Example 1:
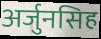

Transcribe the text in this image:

अर्जुनसिह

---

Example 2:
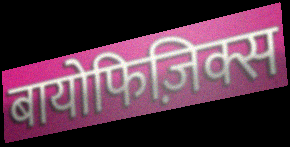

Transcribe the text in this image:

बायोफिज़िक्स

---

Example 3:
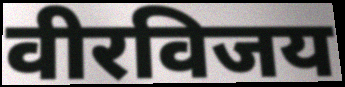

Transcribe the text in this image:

वीरविजय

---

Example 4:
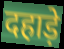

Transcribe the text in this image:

दहाड़े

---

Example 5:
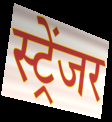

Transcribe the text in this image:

स्ट्रेंजर